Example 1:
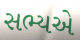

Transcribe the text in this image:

સભ્યએ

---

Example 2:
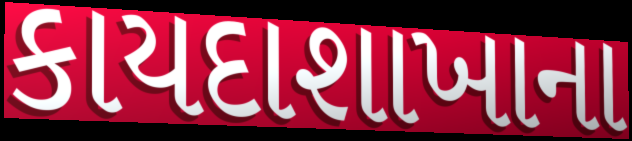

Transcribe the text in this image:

કાયદાશાખાના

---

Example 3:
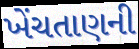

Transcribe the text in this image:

ખેંચતાણની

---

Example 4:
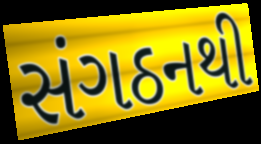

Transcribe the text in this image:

સંગઠનથી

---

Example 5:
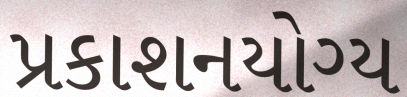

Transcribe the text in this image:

પ્રકાશનયોગ્ય